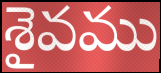
శైవము